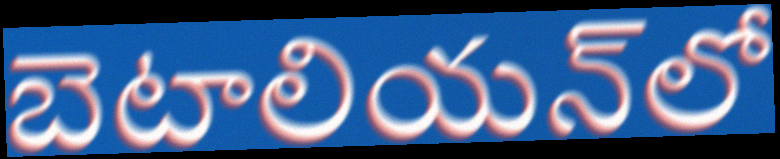
బెటాలియన్‌లో